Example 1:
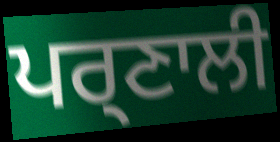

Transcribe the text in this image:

ਪਰ੍ਣਾਲੀ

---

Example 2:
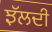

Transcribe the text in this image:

ਝੱਲਦੀ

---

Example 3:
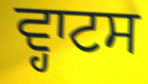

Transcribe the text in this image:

ਵ੍ਹਾਟਸ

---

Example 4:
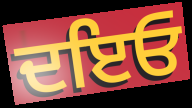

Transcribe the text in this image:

ਦਇਓ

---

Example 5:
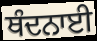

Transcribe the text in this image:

ਥੰਦਨਾਈ